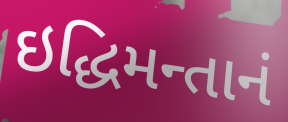
ઇદ્ધિમન્તાનં